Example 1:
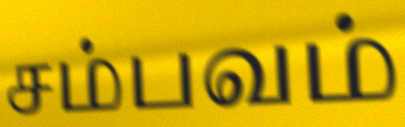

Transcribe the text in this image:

சம்பவம்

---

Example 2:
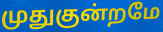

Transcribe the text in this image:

முதுகுன்றமே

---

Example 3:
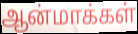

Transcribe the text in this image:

ஆன்மாக்கள்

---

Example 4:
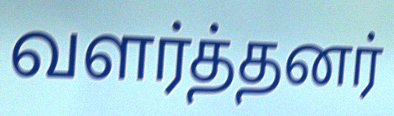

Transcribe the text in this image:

வளர்த்தனர்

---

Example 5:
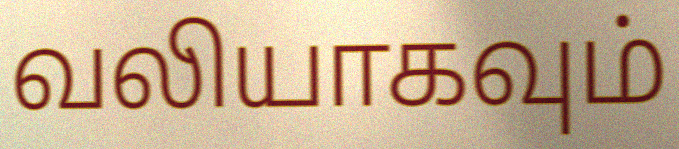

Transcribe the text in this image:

வலியாகவும்